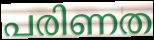
പരിണത